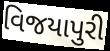
વિજયાપુરી